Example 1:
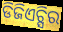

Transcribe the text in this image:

ଡିଜିଏଚ୍ସିର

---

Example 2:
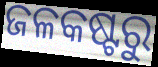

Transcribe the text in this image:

ଜଳକଷ୍ଟରୁ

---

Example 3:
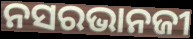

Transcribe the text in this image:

ନସରଭାନଜୀ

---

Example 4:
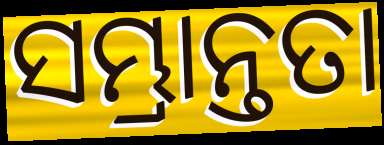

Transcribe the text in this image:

ସମ୍ଭ୍ରାନ୍ତତା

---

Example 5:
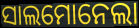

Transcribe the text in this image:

ସାଲମୋନେଲା